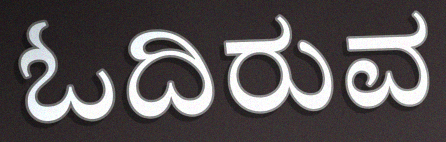
ಓದಿರುವ